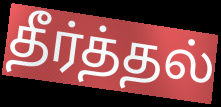
தீர்த்தல்